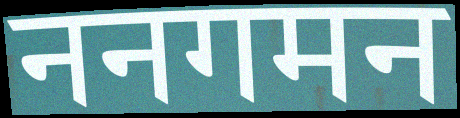
ननगमन